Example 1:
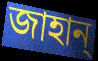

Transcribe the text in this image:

জাহান্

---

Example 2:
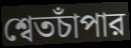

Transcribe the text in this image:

শ্বেতচাঁপার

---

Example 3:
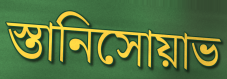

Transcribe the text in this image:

স্তানিসোয়াভ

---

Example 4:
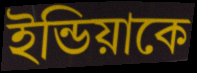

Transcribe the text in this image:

ইন্ডিয়াকে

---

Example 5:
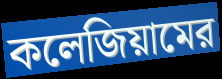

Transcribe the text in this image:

কলেজিয়ামের